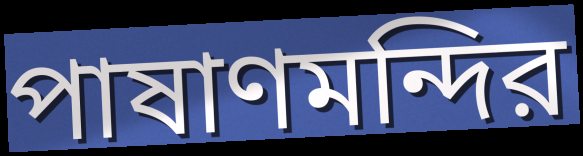
পাষাণমন্দির